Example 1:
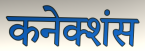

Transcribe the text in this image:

कनेक्शंस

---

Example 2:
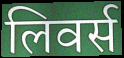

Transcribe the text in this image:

लिवर्स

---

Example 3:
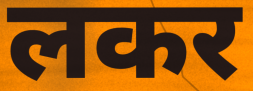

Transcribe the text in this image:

लकर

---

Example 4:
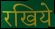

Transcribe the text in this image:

रखिये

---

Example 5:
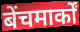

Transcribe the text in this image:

बेंचमार्कों